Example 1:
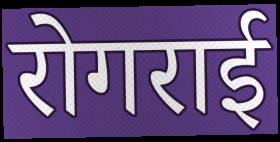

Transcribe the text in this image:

रोगराई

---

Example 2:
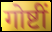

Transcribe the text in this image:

गोष्टीं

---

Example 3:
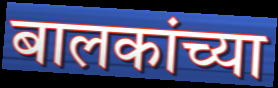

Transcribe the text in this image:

बालकांच्या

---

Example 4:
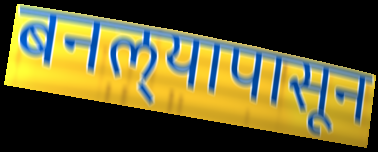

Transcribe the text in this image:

बनल्यापासून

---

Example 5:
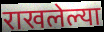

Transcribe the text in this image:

राखलेल्या